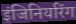
इंजिनियरिंग